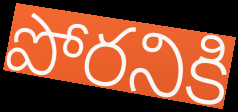
పోరనికి